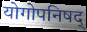
योगोपनिषद्